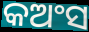
କଅଂସ